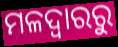
ମଳଦ୍ୱାରରୁ